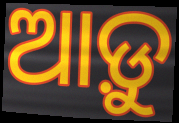
ଆଡ଼ୁ